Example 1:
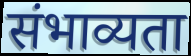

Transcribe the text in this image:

संभाव्यता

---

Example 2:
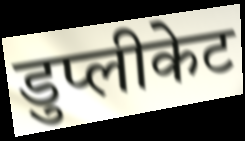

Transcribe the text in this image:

डुप्‍लीकेट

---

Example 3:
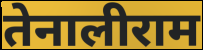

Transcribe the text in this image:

तेनालीराम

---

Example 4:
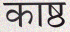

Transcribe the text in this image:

काष्ठ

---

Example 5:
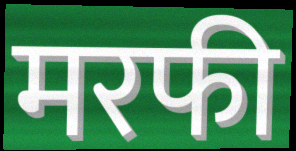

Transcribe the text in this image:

मरफी